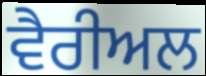
ਵੈਰੀਅਲ